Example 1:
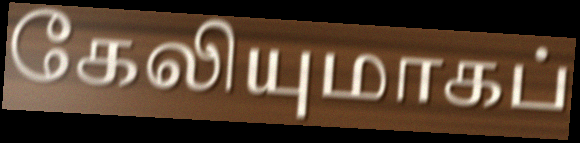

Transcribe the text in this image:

கேலியுமாகப்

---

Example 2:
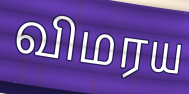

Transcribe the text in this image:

விமரய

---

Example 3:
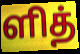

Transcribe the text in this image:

ளித்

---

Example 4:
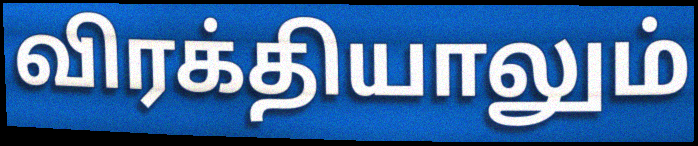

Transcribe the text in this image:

விரக்தியாலும்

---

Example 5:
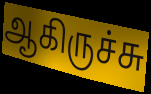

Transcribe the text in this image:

ஆகிருச்சு